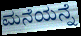
ಮನೆಯನ್ನೆ